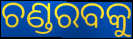
ଚଣ୍ଡରବକୁ